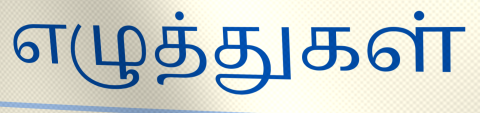
எழுத்துகள்